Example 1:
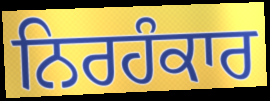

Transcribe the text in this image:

ਨਿਰਹੰਕਾਰ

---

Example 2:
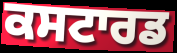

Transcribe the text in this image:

ਕਸਟਾਰਡ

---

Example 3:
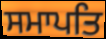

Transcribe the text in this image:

ਸਮਾਪਤਿ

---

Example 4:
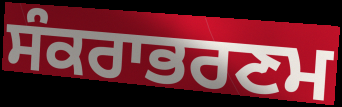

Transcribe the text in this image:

ਸੰਕਰਾਭਰਣਮ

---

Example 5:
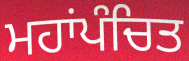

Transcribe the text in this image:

ਮਹਾਂਪੰਚਿਤ